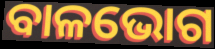
ବାଳଭୋଗ